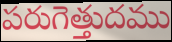
పరుగెత్తుదము